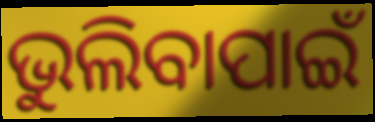
ଭୁଲିବାପାଇଁ